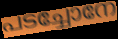
പടച്ചോനേ